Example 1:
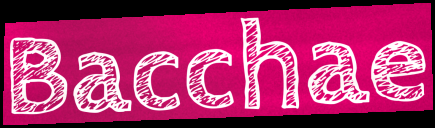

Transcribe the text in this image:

Bacchae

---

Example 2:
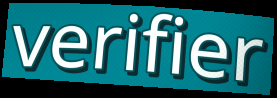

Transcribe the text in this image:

verifier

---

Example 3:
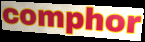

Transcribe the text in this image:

comphor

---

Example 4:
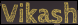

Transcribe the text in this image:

Vikash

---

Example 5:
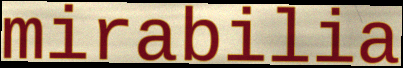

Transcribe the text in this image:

mirabilia